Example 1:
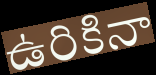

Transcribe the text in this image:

ఉరికినా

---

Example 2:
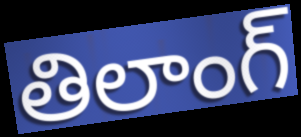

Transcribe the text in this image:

తిలాంగ్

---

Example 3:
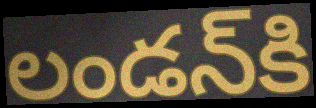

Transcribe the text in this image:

లండన్‌కి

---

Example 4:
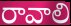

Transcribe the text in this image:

రావాలి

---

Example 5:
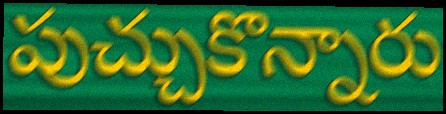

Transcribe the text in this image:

పుచ్చుకొన్నారు